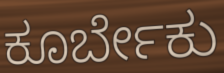
ಕೂರ್ಬೇಕು